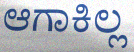
ಆಗಾಕಿಲ್ಲ